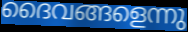
ദൈവങ്ങളെന്നു